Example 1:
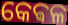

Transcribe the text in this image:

କେଵଳ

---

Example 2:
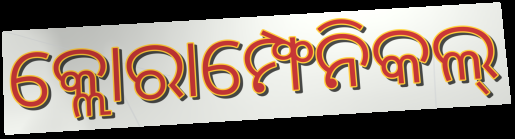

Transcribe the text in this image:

କ୍ଲୋରାମ୍ଫେନିକଲ୍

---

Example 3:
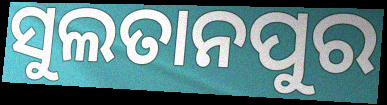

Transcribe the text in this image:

ସୁଲତାନପୁର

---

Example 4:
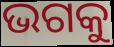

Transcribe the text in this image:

ଭଗକୁ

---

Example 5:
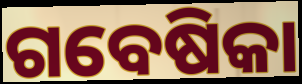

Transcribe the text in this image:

ଗବେଷିକା